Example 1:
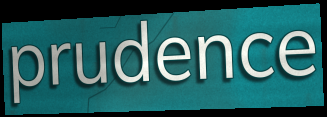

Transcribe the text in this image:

prudence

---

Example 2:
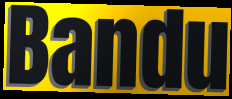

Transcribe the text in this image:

Bandu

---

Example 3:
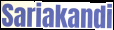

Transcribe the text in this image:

Sariakandi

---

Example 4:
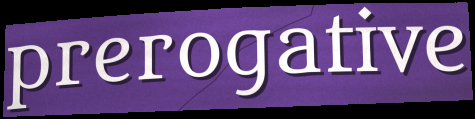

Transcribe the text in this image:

prerogative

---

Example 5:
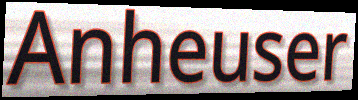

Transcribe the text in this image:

Anheuser